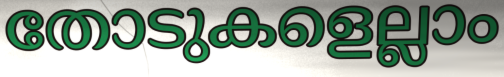
തോടുകളെല്ലാം